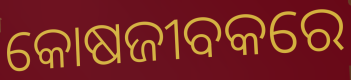
କୋଷଜୀବକରେ